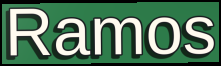
Ramos